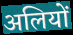
अलियों